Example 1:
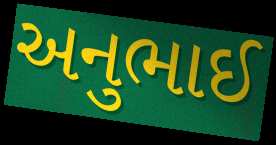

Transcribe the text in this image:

અનુભાઈ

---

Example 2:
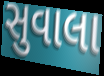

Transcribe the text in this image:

સુવાલા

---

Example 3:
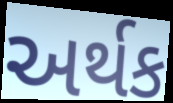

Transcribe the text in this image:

અર્થક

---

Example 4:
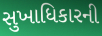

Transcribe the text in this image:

સુખાધિકારની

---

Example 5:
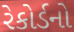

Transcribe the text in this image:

રેકોર્ડનો